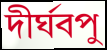
দীর্ঘবপু